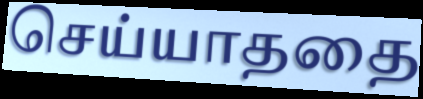
செய்யாததை